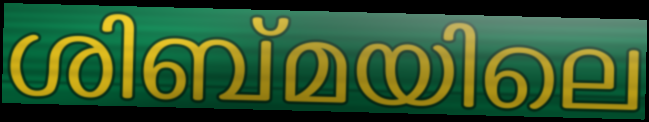
ശിബ്മയിലെ